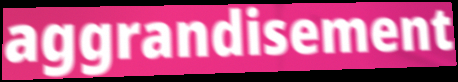
aggrandisement